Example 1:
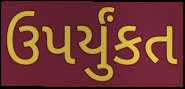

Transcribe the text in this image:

ઉપર્યુંકત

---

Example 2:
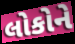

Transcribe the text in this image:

લોકોને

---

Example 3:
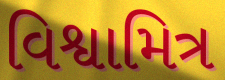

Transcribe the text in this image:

વિશ્વામિત્ર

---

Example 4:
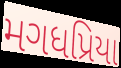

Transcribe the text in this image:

મગધપ્રિયા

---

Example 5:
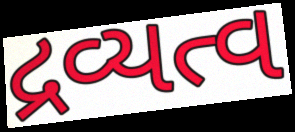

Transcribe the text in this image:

દ્રવ્યત્વ